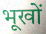
भूखों